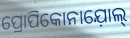
ପ୍ରୋପିକୋନାଯ଼ୋଲ୍